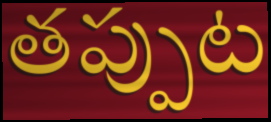
తప్పుట